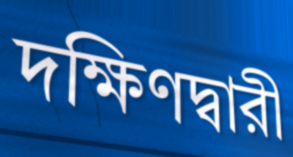
দক্ষিণদ্বারী